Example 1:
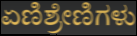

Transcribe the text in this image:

ಏಣಿಶ್ರೇಣಿಗಳು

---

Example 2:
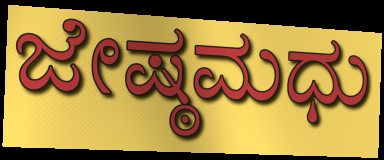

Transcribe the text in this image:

ಜೇಷ್ಠಮಧು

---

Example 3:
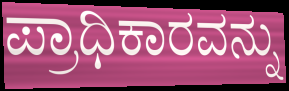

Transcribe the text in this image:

ಪ್ರಾಧಿಕಾರವನ್ನು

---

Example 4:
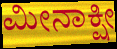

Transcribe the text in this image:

ಮೀನಾಕ್ಷೀ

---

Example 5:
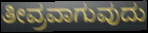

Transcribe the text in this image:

ತೀವ್ರವಾಗುವುದು